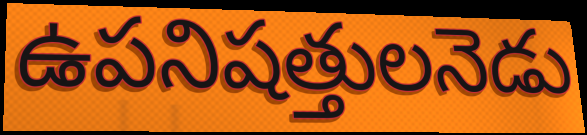
ఉపనిషత్తులనెడు